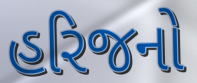
હરિજનો